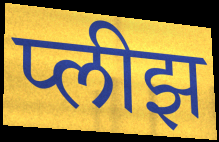
प्लीझ